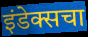
इंडेक्सचा